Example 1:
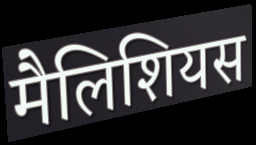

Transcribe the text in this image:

मैलिशियस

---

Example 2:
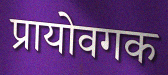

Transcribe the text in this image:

प्रायोवगक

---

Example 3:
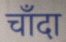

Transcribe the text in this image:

चाँदा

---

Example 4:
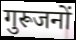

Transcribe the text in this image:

गुरूजनों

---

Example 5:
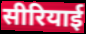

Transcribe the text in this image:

सीरियाई